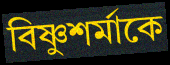
বিষ্ণুশর্মাকে